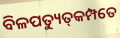
ବିଳପତ୍ୟୁତ୍‌କମ୍ପତେ